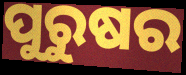
ପୁରୁଷର